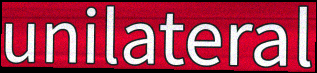
unilateral